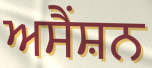
ਅਸੈਂਸ਼ਨ